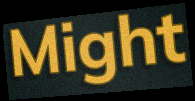
Might